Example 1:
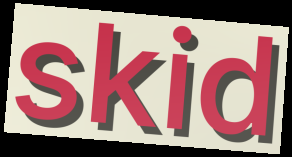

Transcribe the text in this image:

skid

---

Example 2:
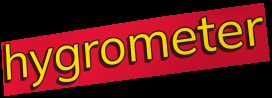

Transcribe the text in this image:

hygrometer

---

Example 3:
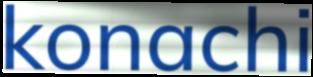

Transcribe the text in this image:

konachi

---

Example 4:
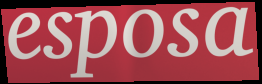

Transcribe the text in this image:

esposa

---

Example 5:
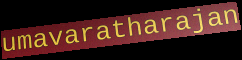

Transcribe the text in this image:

umavaratharajan